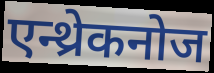
एन्थ्रेकनोज